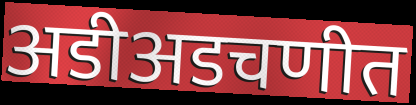
अडीअडचणीत